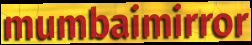
mumbaimirror